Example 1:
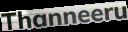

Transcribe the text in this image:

Thanneeru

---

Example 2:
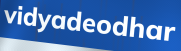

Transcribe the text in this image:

vidyadeodhar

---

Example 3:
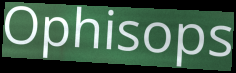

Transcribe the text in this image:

Ophisops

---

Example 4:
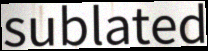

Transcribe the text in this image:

sublated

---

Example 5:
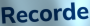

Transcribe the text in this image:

Recorde